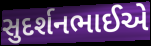
સુદર્શનભાઈએ